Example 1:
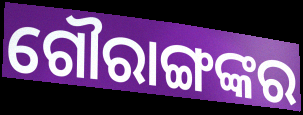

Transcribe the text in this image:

ଗୌରାଙ୍ଗଙ୍କର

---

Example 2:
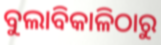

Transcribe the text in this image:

ବୁଲାବିକାଳିଠାରୁ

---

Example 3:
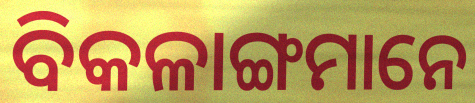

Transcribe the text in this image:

ବିକଳାଙ୍ଗମାନେ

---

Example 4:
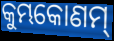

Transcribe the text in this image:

କୁମ୍ଭକୋଣମ୍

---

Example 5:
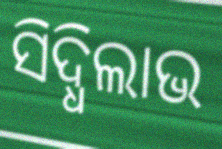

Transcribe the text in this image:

ସିଦ୍ଧିଲାଭ